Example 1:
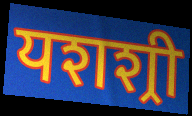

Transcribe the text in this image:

यशश्री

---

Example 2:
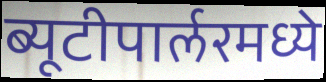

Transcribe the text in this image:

ब्यूटीपार्लरमध्ये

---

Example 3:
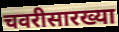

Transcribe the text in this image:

चवरीसारख्या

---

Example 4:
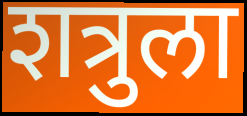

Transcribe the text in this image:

शत्रुला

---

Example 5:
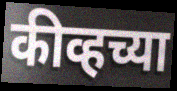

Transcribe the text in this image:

कीव्हच्या